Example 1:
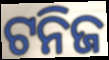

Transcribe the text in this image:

ଟନିଜ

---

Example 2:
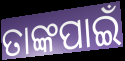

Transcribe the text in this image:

ତାଙ୍କପାଇଁ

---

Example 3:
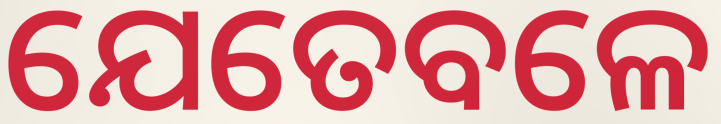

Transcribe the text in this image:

ଯେତେବଳେ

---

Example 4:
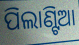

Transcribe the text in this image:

ପିଲାଣ୍ଟିଆ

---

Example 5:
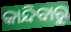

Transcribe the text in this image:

କାନ୍ଦିବାରୁ